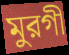
মুরগী